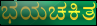
ಭಯಚಕಿತ